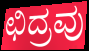
ಛಿದ್ರವು